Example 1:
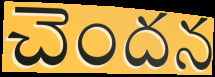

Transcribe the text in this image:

చెందన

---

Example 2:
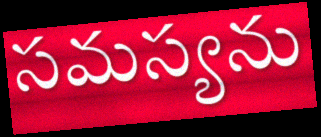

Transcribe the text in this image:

సమస్యను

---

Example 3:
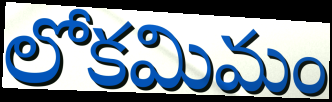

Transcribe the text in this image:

లోకమిమం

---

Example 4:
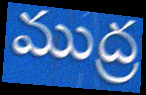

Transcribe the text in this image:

ముద్ర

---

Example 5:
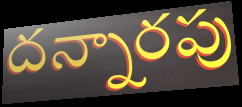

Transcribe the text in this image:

దన్నారపు